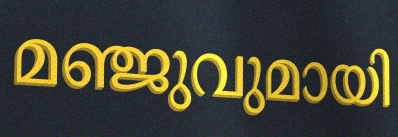
മഞ്ജുവുമായി